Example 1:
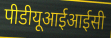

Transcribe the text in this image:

पीडीयूआईआईसी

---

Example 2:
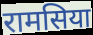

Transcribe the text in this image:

रामसिया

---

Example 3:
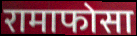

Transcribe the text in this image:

रामाफोसा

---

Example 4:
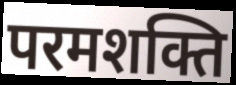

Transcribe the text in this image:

परमशक्ति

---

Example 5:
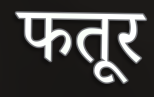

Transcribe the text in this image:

फतूर